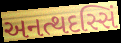
અનત્થદસ્સિં